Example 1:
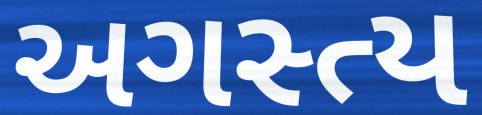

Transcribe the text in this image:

અગસ્ત્ય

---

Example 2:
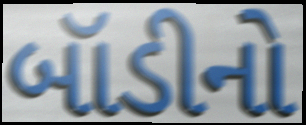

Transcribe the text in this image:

બૉડીનો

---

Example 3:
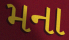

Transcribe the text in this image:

મના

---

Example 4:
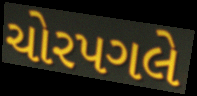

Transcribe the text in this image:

ચોરપગલે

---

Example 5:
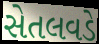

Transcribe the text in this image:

સેતલવડે